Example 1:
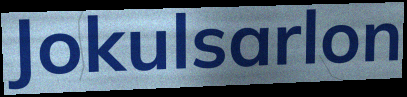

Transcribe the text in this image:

Jokulsarlon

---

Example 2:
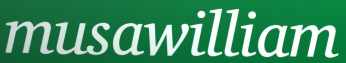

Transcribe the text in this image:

musawilliam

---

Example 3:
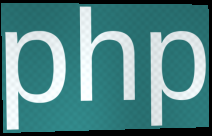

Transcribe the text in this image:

php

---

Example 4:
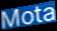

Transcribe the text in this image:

Mota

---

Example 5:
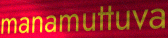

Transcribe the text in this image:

manamuttuva